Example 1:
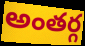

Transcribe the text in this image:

అంతర్గ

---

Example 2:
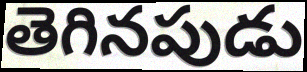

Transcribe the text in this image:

తెగినపుడు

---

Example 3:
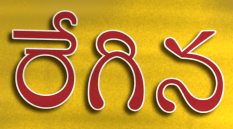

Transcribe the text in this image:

రేగిన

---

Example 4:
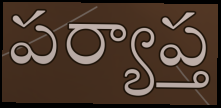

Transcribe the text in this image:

పర్యాప్త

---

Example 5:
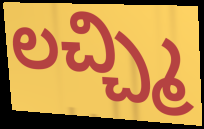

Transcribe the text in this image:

లచ్చ్మి